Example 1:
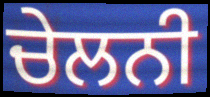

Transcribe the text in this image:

ਚੇਲਨੀ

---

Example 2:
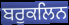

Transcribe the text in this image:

ਬਰੁਕਲਿਨ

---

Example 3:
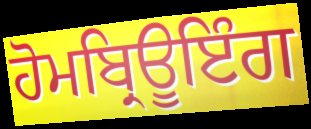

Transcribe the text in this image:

ਹੋਮਬ੍ਰਿਊਇੰਗ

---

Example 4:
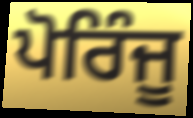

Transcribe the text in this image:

ਪੋਰਿੰਜੂ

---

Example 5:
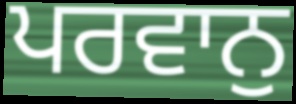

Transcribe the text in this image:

ਪਰਵਾਨੁ